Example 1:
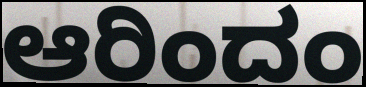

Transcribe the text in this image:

ಆರಿಂದಂ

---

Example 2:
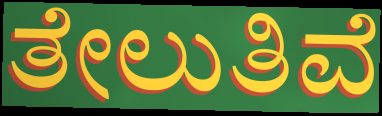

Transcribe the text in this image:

ತೇಲುತಿವೆ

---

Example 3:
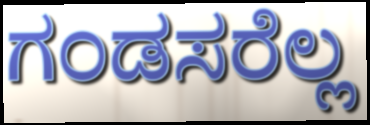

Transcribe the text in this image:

ಗಂಡಸರೆಲ್ಲ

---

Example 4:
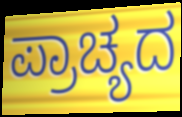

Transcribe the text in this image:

ಪ್ರಾಚ್ಯದ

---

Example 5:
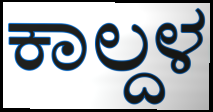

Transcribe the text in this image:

ಕಾಲ್ದಳ